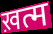
ख़त्म